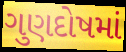
ગુણદોષમાં